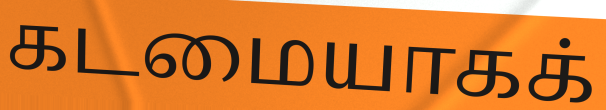
கடமையாகக்